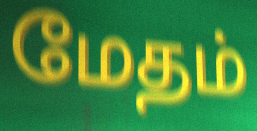
மேதம்